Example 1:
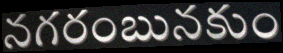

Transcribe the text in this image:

నగరంబునకుం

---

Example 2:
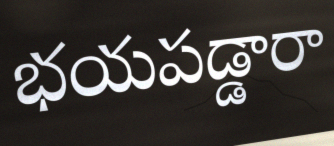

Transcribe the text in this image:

భయపడ్డారా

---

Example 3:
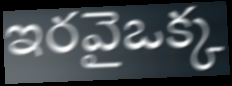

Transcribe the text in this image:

ఇరవైఒక్క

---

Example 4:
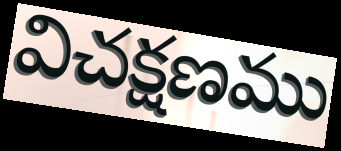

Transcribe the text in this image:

విచక్షణము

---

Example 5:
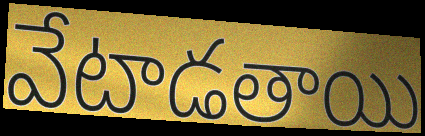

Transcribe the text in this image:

వేటాడతాయి